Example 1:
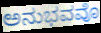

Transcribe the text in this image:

ಅನುಭವವೊ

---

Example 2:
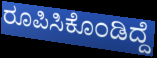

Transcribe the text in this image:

ರೂಪಿಸಿಕೊಂಡಿದ್ದೆ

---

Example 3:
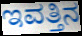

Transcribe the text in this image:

ಇವತ್ತಿನ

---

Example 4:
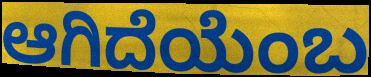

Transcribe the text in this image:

ಆಗಿದೆಯೆಂಬ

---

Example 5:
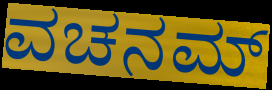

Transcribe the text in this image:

ವಚನಮ್